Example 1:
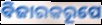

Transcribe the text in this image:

ବିଜାରକରୂପେ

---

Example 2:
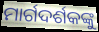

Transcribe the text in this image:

ମାର୍ଗଦର୍ଶକଙ୍କୁ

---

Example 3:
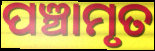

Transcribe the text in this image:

ପଞ୍ଚାମୃତ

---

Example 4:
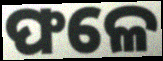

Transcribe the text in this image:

ଫଳେ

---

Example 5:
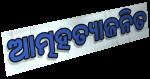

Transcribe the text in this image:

ଆତ୍ମହତ୍ୟାଜନିତ